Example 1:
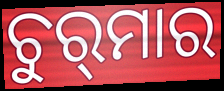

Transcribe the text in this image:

ଚୁର୍‍ମାର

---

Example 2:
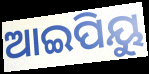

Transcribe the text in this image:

ଆଇପିୟୁ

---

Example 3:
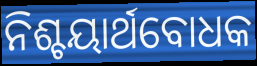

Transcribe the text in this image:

ନିଶ୍ଚୟାର୍ଥବୋଧକ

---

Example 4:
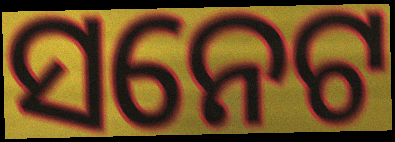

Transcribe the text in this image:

ସନେଟ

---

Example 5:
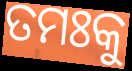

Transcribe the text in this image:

ତମଃକୁ